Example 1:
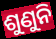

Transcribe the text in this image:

ଶୁଣୁନି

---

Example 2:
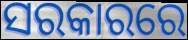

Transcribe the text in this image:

ସରକାରରେ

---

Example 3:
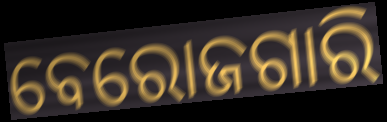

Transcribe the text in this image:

ବେରୋଜଗାରି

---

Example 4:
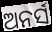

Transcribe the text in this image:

ଅନର୍ସ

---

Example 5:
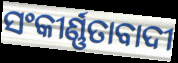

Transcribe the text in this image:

ସଂକୀର୍ଣ୍ଣତାବାଦୀ